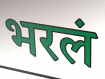
भरलं